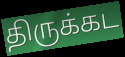
திருக்கட